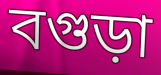
বগুড়া